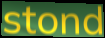
stond